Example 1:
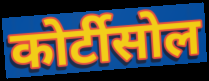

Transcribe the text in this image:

कोर्टीसोल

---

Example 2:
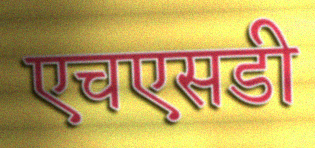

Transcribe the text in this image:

एचएसडी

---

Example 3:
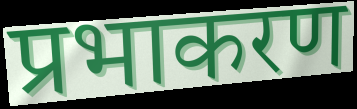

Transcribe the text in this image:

प्रभाकरण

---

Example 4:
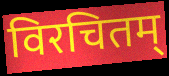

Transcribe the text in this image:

विरचितम्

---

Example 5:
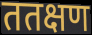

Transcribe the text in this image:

ततक्षण